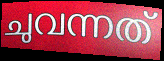
ചുവന്നത്